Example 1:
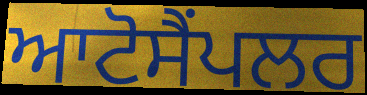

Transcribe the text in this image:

ਆਟੋਸੈਂਪਲਰ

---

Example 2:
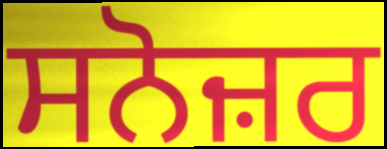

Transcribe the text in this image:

ਸਨੋਜ਼ਰ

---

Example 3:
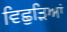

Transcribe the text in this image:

ਵਿਛੁੜਿਆਂ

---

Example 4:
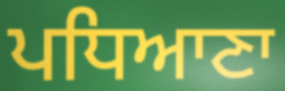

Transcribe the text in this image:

ਪਧਿਆਣਾ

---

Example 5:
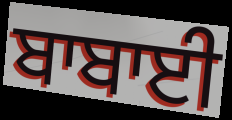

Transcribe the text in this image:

ਬਾਬਾਈ